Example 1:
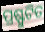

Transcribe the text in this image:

ପ୍ରଷ୍ଫୁଟିତ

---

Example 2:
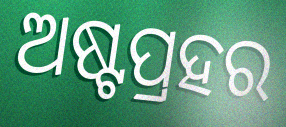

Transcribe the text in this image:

ଅଷ୍ଟପ୍ରହର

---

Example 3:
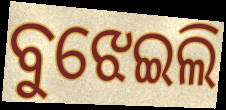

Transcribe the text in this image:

ବୁଝେଇଲି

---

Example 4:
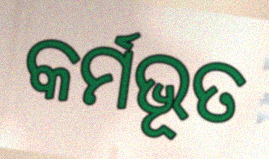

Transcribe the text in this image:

କର୍ମଭୂତ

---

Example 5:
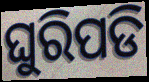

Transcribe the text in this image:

ଘୁରିପଡି